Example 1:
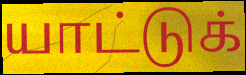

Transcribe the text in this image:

யாட்டுக்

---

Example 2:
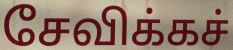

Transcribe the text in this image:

சேவிக்கச்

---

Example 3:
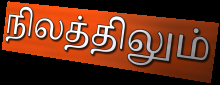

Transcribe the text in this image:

நிலத்திலும்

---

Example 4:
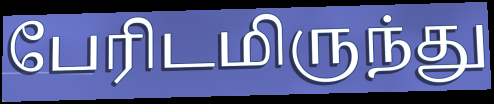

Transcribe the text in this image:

பேரிடமிருந்து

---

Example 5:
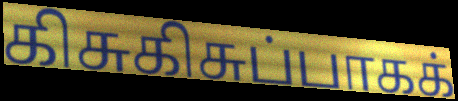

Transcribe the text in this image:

கிசுகிசுப்பாகக்